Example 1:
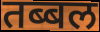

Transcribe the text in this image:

तब्बल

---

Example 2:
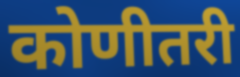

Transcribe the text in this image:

कोणीतरी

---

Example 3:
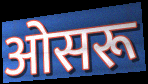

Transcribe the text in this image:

ओसरू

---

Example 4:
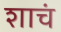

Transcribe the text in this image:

शाचं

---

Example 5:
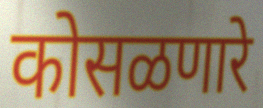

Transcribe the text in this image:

कोसळणारे